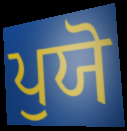
ਪੁਯੋ